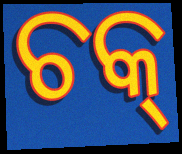
ଚକ୍